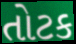
તોટક